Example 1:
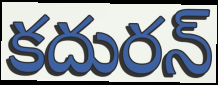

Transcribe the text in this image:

కదురన్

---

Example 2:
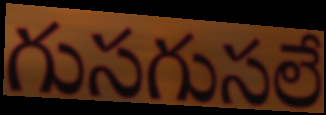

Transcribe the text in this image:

గుసగుసలే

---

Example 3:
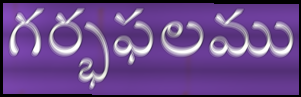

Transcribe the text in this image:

గర్భఫలము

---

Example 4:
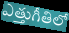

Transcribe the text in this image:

ఎత్తుగీతిలో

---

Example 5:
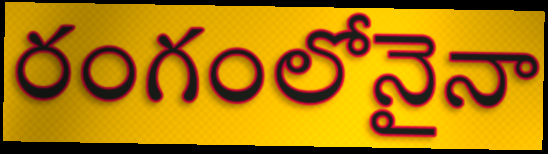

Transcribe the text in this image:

రంగంలోనైనా